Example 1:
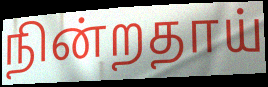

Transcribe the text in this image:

நின்றதாய்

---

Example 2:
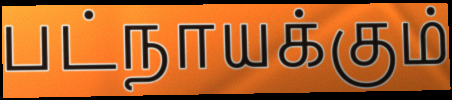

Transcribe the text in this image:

பட்நாயக்கும்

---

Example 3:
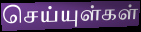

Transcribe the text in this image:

செய்யுள்கள்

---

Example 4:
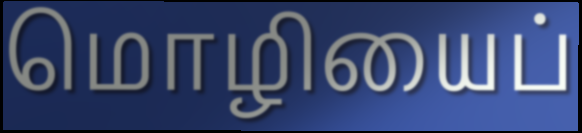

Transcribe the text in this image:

மொழியைப்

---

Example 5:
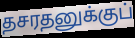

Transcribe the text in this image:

தசரதனுக்குப்